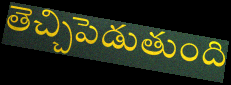
తెచ్చిపెడుతుంది